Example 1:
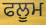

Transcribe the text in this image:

ਫਲੂਮ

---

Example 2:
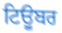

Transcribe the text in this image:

ਟਿਊੁਬਰ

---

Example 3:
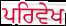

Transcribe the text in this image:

ਪਰਿਵੇਖ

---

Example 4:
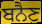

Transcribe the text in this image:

ਬਨੈਣ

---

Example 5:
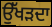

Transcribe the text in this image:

ਉੱਖੜਦਾ